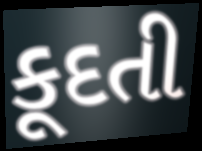
કૂદતી